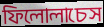
ফিলোলাচেস